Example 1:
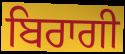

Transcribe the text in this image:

ਬਿਰਾਗੀ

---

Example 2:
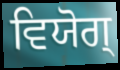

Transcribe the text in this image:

ਵਿਯੋਗ੍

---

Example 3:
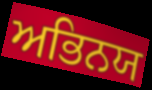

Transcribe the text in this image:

ਅਭਿਨਯ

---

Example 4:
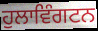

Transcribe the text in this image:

ਹੁਲਾਵਿੰਗਟਨ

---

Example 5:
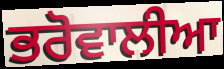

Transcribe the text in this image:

ਭਰੋਵਾਲੀਆ